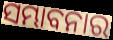
ସମ୍ଭାବନାର